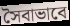
সৈবাভাবে